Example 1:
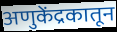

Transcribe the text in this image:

अणुकेंद्रकातून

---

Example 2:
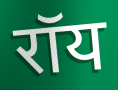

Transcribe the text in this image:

रॉय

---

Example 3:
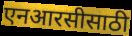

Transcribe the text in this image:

एनआरसीसाठी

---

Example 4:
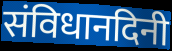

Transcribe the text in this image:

संविधानदिनी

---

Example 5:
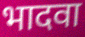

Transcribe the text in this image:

भादवा